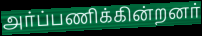
அர்ப்பணிக்கின்றனர்